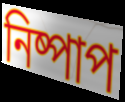
নিষ্পাপ